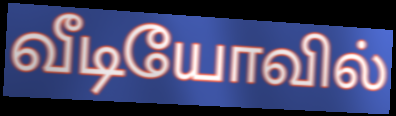
வீடியோவில்